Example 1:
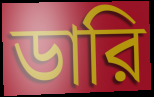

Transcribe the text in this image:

ডারি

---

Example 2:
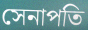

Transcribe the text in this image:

সেনাপতি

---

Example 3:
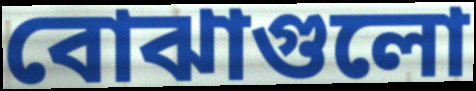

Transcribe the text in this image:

বোঝাগুলো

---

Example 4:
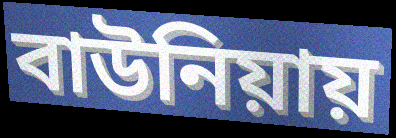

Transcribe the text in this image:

বাউনিয়ায়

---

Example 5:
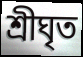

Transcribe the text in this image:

শ্রীঘৃত